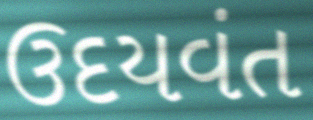
ઉદયવંત